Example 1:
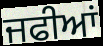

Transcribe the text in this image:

ਜਫੀਆਂ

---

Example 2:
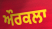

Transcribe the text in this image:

ਔਰਕਲਾ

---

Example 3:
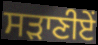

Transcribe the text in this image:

ਸੜਾਣੀਏਂ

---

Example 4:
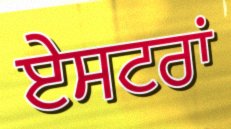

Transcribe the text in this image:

ਏਸਟਰਾਂ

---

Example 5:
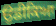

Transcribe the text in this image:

ਉਡੀਕਿਆ